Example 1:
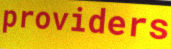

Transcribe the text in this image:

providers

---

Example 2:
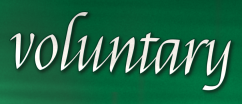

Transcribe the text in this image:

voluntary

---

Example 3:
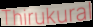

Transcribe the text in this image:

Thirukural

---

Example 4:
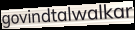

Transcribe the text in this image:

govindtalwalkar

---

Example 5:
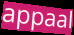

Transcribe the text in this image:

appaal